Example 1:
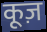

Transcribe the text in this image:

कूज़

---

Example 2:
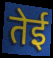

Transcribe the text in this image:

तेई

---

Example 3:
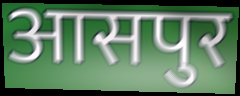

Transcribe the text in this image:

आसपुर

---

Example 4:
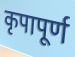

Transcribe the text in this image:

कृपापूर्ण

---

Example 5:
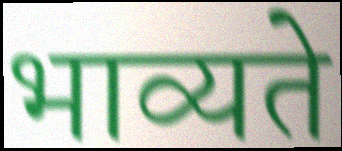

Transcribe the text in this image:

भाव्यते